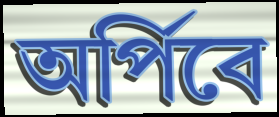
অর্পিবে